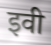
इवी